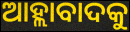
ଆହ୍ଲାବାଦକୁ